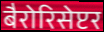
बैरोरिसेप्टर